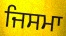
ਜਿਸਮਾ